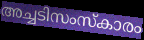
അച്ചടിസംസ്കാരം